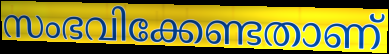
സംഭവിക്കേണ്ടതാണ്